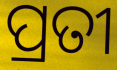
ପ୍ରତୀ